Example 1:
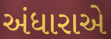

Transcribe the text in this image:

અંધારાએ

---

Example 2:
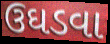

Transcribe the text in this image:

ઉઘડવા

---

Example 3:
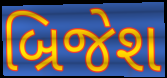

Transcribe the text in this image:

બ્રિજેશ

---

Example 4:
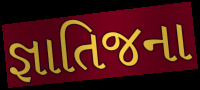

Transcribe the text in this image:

જ્ઞાતિજના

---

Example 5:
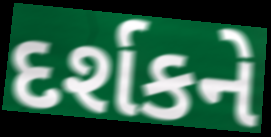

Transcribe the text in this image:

દર્શકને